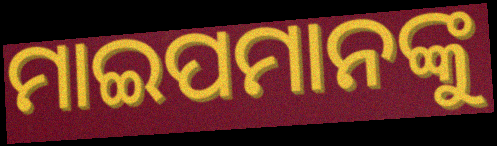
ମାଇପମାନଙ୍କୁ